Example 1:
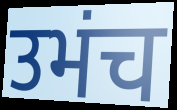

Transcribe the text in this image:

उभंच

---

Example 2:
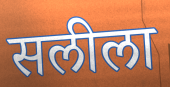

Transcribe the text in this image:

सलीला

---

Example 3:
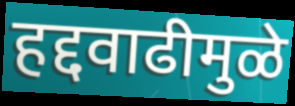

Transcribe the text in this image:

हद्दवाढीमुळे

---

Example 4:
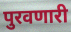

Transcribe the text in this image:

पुरवणारी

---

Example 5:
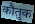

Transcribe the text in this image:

कौतुक